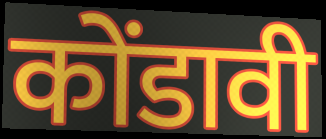
कोंडावी